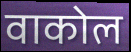
वाकोल